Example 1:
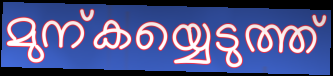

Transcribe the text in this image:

മുന്കയ്യെടുത്ത്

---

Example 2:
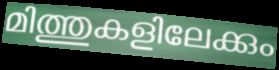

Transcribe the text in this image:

മിത്തുകളിലേക്കും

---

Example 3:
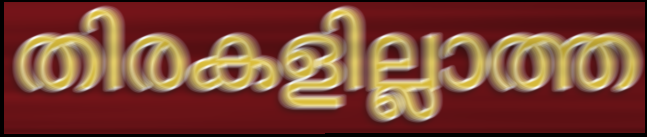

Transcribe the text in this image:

തിരകളില്ലാത്ത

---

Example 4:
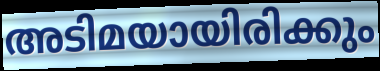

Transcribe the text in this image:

അടിമയായിരിക്കും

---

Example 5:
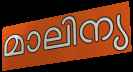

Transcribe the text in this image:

മാലിന്യ